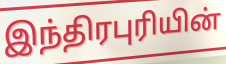
இந்திரபுரியின்